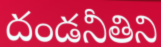
దండనీతిని